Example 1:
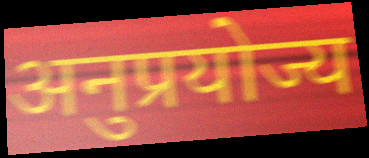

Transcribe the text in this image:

अनुप्रयोज्य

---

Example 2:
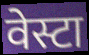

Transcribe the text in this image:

वेस्टा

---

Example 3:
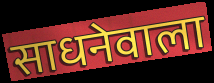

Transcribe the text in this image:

साधनेवाला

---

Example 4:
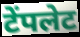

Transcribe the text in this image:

टेंपलेट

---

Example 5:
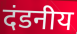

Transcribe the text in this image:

दंडनीय